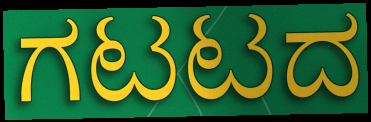
ಗಟಟದ